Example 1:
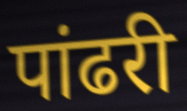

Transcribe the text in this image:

पांढरी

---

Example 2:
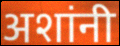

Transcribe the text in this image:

अशांनी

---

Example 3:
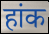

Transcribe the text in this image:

हांक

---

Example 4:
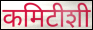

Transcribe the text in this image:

कमिटीशी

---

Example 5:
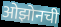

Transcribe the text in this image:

ओझोनची